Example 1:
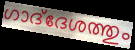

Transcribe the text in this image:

ഗാദ്‌ദേശത്തും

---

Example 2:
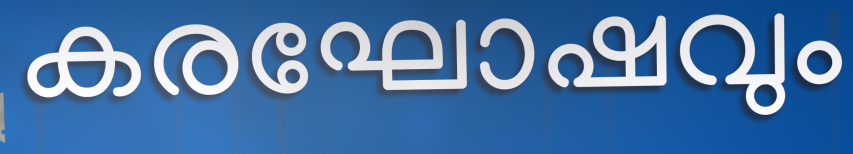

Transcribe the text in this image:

കരഘോഷവും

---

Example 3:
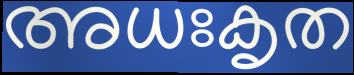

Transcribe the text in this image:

അധഃകൃത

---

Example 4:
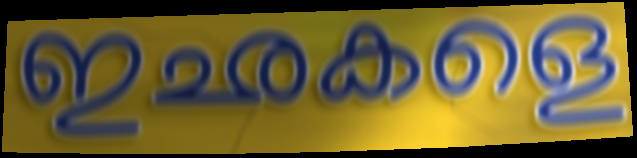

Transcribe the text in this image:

ഇഛകളെ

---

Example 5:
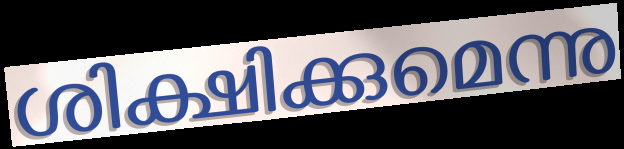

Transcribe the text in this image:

ശിക്ഷിക്കുമെന്നു